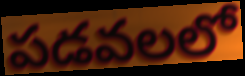
పడవలలో